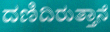
ದಣಿದಿರುತ್ತಾನೆ